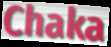
Chaka